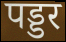
पड्डर